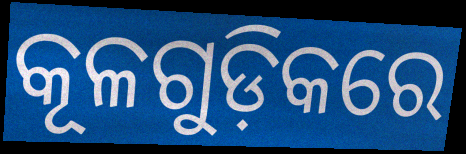
କୂଳଗୁଡ଼ିକରେ